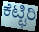
ಕೆಟ್ಟಿರಿ